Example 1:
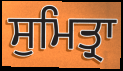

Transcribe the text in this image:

ਸੁਮਿਤ੍ਰਾ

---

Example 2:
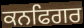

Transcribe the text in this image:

ਕਨਫਿਗਰ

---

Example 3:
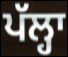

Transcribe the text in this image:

ਪੱਲ੍ਹਾ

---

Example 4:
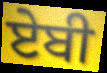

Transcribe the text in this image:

ਏਬੀ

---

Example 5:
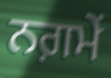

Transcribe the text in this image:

ਨਗ਼ਮੇਂ